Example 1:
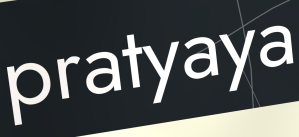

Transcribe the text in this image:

pratyaya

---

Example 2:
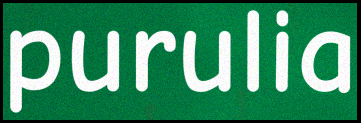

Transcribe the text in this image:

purulia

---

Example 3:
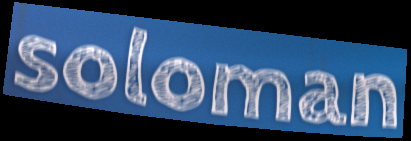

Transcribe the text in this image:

soloman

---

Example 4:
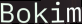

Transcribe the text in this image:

Bokim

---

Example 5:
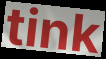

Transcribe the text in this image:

tink